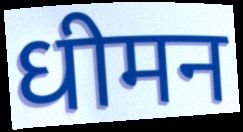
धीमन